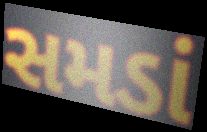
સમડાં